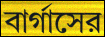
বার্গাসের